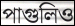
পাগুলিও